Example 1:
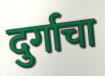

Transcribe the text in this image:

दुर्गाचा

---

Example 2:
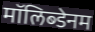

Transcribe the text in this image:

मॉलिब्डेनम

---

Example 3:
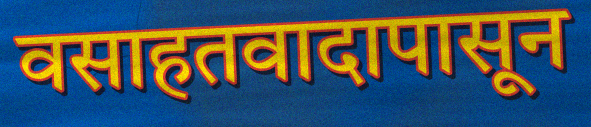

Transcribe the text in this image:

वसाहतवादापासून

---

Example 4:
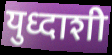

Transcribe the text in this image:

युध्दाशी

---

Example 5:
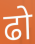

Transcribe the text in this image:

ढो